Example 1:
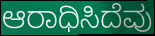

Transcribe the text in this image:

ಆರಾಧಿಸಿದೆವು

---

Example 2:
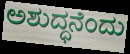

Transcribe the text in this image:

ಅಶುದ್ಧನೆಂದು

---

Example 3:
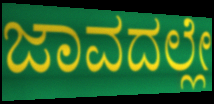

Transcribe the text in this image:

ಜಾವದಲ್ಲೇ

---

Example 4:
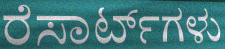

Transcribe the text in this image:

ರೆಸಾರ್ಟ್‌ಗಳು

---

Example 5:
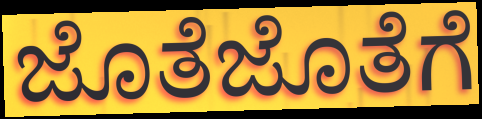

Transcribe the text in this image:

ಜೊತೆಜೊತೆಗೆ